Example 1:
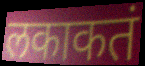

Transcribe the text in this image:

लकाकतं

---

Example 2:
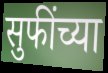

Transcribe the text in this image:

सुफींच्या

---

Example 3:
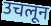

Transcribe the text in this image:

उचलून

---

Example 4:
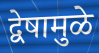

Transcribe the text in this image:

द्वेषामुळे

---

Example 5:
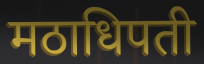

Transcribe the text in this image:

मठाधिपती